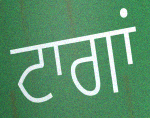
ਟਾਗਾਂ